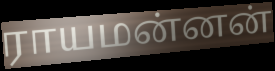
ராயமன்னன்